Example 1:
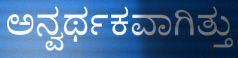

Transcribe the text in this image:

ಅನ್ವರ್ಥಕವಾಗಿತ್ತು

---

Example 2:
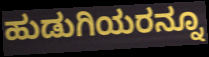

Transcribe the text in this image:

ಹುಡುಗಿಯರನ್ನೂ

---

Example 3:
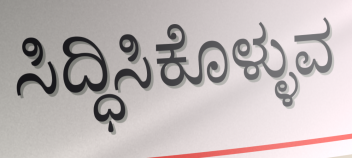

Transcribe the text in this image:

ಸಿದ್ಧಿಸಿಕೊಳ್ಳುವ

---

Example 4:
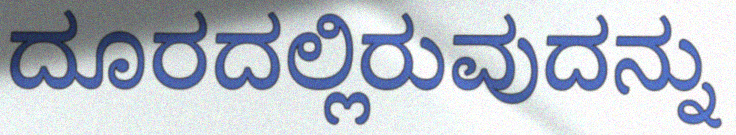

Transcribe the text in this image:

ದೂರದಲ್ಲಿರುವುದನ್ನು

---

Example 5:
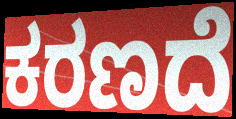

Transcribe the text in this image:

ಕರಣದೆ